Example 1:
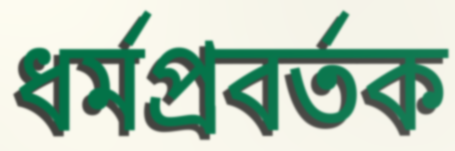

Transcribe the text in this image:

ধর্মপ্রবর্তক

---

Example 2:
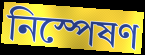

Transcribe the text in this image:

নিস্পেষণ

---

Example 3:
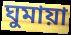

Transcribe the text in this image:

ঘুমায়া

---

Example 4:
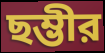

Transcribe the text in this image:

ছম্ভীর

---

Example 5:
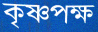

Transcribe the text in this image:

কৃষ্ণপক্ষ